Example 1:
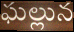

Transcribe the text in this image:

ఘల్లున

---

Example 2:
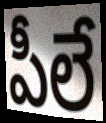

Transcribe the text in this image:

పీలే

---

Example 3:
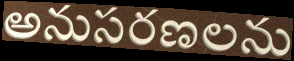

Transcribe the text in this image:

అనుసరణలను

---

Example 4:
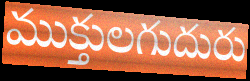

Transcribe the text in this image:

ముక్తులగుదురు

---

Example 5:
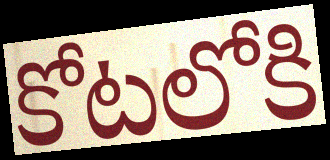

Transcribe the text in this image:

కోటలోకి